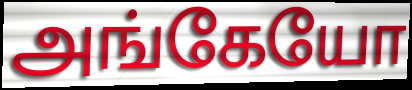
அங்கேயோ